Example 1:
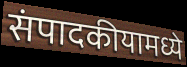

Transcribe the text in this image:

संपादकीयामध्ये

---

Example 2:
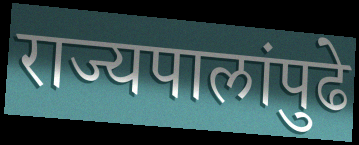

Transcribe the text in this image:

राज्यपालांपुढे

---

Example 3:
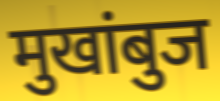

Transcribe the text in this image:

मुखांबुज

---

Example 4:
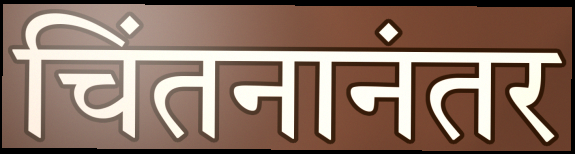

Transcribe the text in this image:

चिंतनानंतर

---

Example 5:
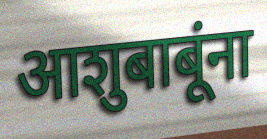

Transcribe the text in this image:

आशुबाबूंना